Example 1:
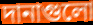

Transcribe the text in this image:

দানাগুলো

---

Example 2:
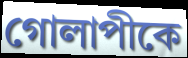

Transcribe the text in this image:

গোলাপীকে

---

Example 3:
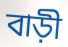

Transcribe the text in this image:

বাড়ী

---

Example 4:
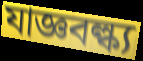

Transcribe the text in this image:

যাজ্ঞবল্ক্য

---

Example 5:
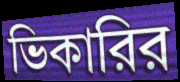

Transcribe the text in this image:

ভিকারির